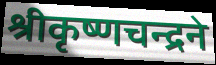
श्रीकृष्णचन्द्रने